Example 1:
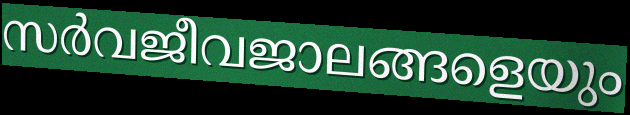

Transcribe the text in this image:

സർവജീവജാലങ്ങളെയും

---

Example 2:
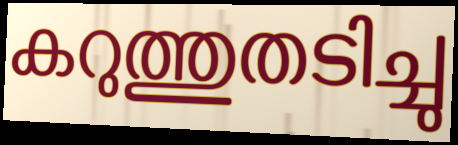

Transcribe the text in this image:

കറുത്തുതടിച്ചു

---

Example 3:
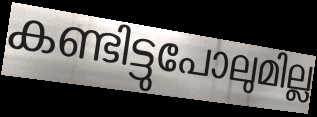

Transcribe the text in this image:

കണ്ടിട്ടുപോലുമില്ല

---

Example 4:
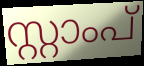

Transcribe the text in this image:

സ്റ്റാംപ്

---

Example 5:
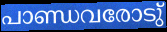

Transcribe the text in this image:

പാണ്ഡവരോടു്